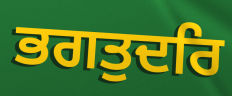
ਭਗਤੁਦਰਿ